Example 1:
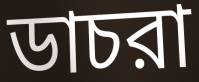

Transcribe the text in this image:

ডাচরা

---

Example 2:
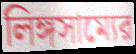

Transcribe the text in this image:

লিঙ্গসাম্যের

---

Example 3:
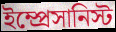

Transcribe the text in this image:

ইম্প্রেসানিস্ট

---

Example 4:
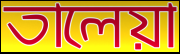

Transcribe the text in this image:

তালেয়া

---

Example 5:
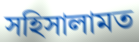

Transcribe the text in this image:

সহিসালামত